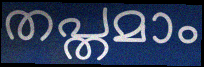
തപ്തമാം